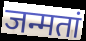
जन्मतां